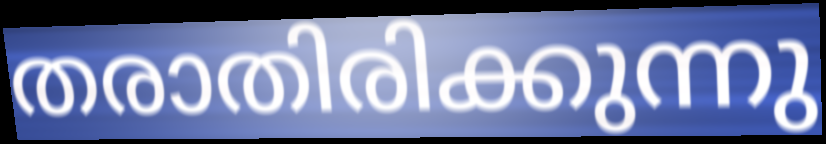
തരാതിരിക്കുന്നു